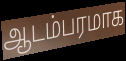
ஆடம்பரமாக